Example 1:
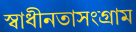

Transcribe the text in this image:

স্বাধীনতাসংগ্রাম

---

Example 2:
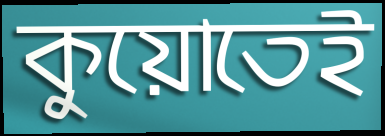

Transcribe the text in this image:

কুয়োতেই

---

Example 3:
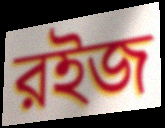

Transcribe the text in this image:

রইজ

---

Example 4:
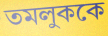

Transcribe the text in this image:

তমলুককে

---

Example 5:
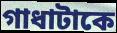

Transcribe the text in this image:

গাধাটাকে